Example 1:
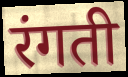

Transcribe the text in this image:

रंगती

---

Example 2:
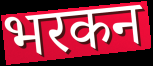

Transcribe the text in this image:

भरकन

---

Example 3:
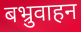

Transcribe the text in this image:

बभ्रुवाहन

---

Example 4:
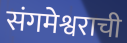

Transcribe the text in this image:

संगमेश्वराची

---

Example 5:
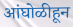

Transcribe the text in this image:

आंघोळीहून